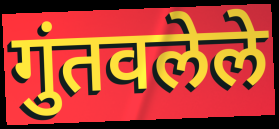
गुंतवलेले